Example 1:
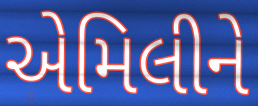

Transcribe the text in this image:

એમિલીને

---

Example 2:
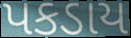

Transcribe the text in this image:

પકડાય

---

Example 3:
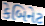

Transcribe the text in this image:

કેબિનેટ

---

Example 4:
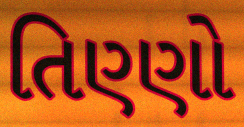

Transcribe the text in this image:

તિણ્ણો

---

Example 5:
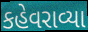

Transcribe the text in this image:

કહેવરાવ્યા